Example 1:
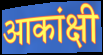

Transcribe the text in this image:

आकांक्षी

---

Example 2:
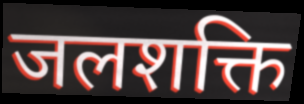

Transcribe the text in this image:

जलशक्ति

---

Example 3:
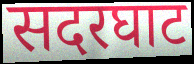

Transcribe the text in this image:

सदरघाट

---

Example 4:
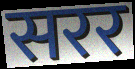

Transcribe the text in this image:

सरर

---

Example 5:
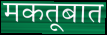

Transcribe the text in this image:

मकतूबात